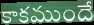
కాకముందే